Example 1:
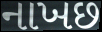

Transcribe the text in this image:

નાખછ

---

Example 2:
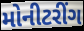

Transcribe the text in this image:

મોનીટરીંગ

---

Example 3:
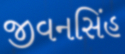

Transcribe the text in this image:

જીવનસિંહ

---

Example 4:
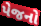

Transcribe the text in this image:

પેજનો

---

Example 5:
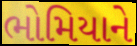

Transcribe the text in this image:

ભોમિયાને